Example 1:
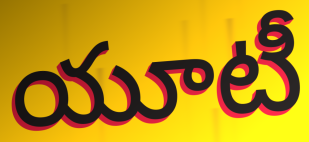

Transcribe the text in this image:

యూటీ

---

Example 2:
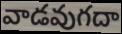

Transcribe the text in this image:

వాడవుగదా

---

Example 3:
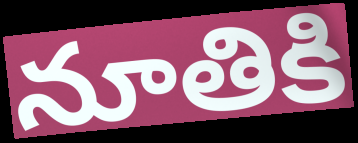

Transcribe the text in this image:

నూతికి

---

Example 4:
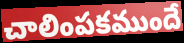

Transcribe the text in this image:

చాలింపకముందే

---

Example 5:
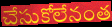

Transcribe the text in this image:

చేసుకోలేనంత